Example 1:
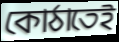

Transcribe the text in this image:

কোঠাতেই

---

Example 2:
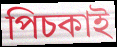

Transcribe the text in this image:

পিচকাই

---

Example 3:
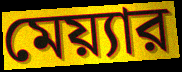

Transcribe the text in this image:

মেয়্যার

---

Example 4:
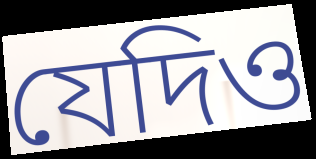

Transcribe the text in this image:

যেদিও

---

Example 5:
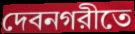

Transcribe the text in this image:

দেবনগরীতে